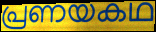
പ്രണയകഥ